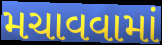
મચાવવામાં